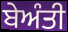
ਬੇਅੰਤੀ